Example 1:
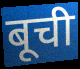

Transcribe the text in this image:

बूची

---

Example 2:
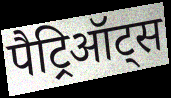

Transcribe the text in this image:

पैट्रिऑट्स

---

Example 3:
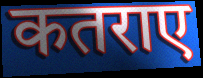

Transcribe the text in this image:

कतराए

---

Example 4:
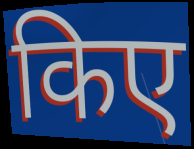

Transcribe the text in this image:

किए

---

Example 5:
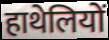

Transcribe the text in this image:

हाथेलियों